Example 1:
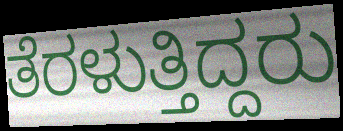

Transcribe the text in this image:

ತೆರಳುತ್ತಿದ್ದರು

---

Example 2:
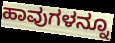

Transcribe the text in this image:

ಹಾವುಗಳನ್ನೂ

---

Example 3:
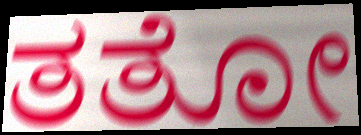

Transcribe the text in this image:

ತತೋ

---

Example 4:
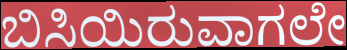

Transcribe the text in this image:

ಬಿಸಿಯಿರುವಾಗಲೇ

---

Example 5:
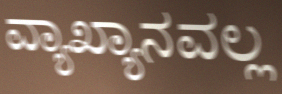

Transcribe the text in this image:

ವ್ಯಾಖ್ಯಾನವಲ್ಲ